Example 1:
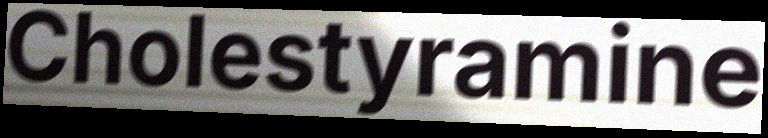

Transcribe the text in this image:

Cholestyramine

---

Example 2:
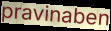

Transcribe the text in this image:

pravinaben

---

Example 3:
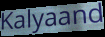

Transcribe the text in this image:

Kalyaand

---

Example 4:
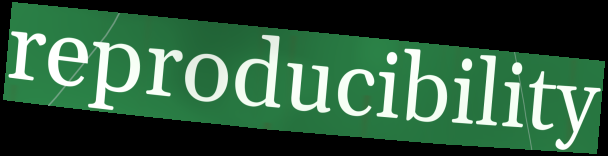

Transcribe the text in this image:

reproducibility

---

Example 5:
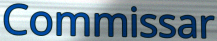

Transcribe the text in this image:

Commissar